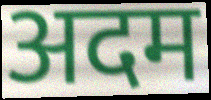
अदम